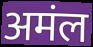
अमंल